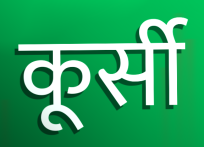
कूर्सी